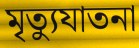
মৃত্যুযাতনা